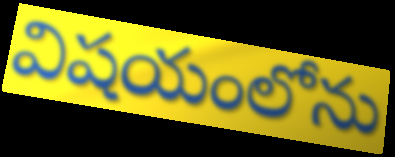
విషయంలోను